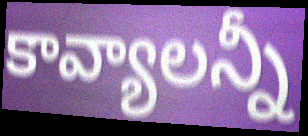
కావ్యాలన్నీ